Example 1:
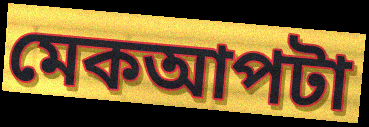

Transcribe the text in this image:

মেকআপটা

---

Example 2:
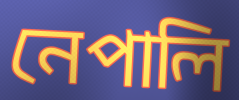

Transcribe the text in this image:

নেপালি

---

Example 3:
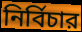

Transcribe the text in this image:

নির্বিচার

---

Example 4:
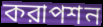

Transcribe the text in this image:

করাপশন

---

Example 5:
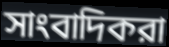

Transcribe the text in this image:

সাংবাদিকরা